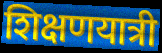
शिक्षणयात्री